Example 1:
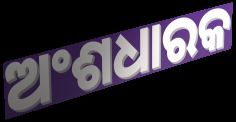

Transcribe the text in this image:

ଅଂଶଧାରକ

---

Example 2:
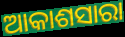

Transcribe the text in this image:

ଆକାଶସାରା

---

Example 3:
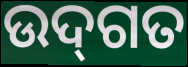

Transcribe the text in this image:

ଉଦ୍‌ଗତ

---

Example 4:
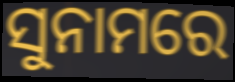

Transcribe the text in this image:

ସୁନାମରେ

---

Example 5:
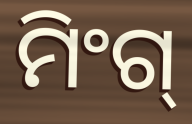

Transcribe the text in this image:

ମିଂଗ୍